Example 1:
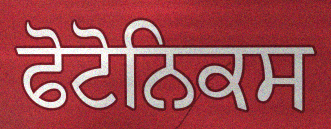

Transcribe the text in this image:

ਫੋਟੋਨਿਕਸ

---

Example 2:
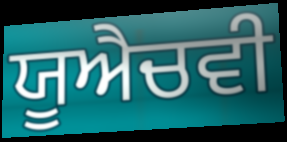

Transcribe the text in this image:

ਯੂਐਚਵੀ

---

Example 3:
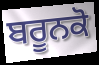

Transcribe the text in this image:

ਬਰੂਨਕੋ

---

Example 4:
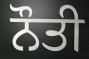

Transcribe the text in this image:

ਨੌਤੀ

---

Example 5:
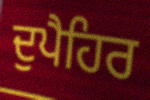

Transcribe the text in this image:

ਦੁਪੈਹਿਰ